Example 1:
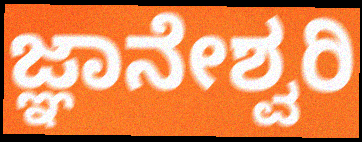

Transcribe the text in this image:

ಜ್ಞಾನೇಶ್ವರಿ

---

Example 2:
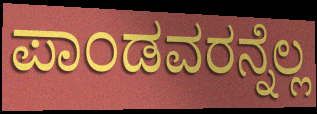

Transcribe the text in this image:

ಪಾಂಡವರನ್ನೆಲ್ಲ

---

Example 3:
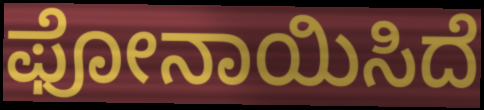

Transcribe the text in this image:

ಫೋನಾಯಿಸಿದೆ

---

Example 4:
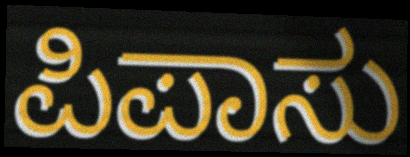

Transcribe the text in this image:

ಪಿಪಾಸು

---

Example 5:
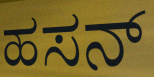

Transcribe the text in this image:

ಹಸನ್